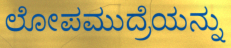
ಲೋಪಮುದ್ರೆಯನ್ನು